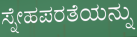
ಸ್ನೇಹಪರತೆಯನ್ನು